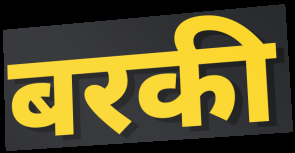
बरकी